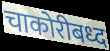
चाकोरीबध्द